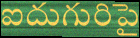
ఐదుగురిపై